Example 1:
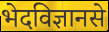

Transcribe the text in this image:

भेदविज्ञानसे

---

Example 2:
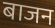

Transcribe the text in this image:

बाजन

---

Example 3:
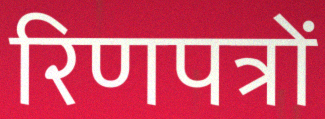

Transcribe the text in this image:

रिणपत्रों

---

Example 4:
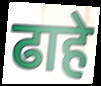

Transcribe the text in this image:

ढाहे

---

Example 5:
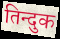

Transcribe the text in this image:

तिन्दुक